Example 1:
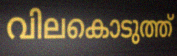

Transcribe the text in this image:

വിലകൊടുത്ത്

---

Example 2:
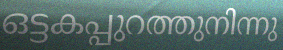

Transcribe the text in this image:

ഒട്ടകപ്പുറത്തുനിന്നു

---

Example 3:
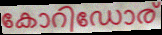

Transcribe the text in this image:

കോറിഡോര്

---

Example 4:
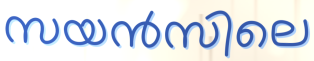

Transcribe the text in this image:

സയൻസിലെ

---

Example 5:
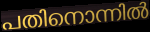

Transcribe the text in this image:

പതിനൊന്നിൽ